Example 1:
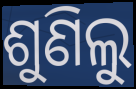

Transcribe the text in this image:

ଶୁଣିଲୁ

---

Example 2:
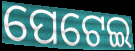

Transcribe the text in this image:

ପେଟେଇ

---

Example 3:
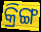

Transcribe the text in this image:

କ୍ରିଙ୍ଗ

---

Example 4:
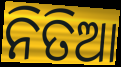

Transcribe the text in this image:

ନିତିଆ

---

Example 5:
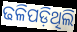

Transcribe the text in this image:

ଢଳିପଡ଼ିଥିଲି